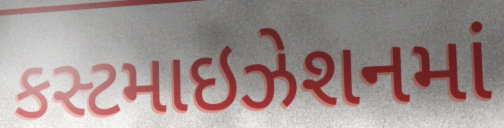
કસ્ટમાઇઝેશનમાં